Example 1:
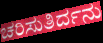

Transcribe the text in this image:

ಚರಿಸುತಿರ್ದನು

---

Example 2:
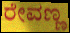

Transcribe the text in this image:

ರೇವಣ್ಣ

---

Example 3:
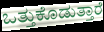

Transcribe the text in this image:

ಒತ್ತುಕೊಡುತ್ತಾರೆ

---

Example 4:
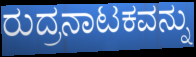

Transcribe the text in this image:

ರುದ್ರನಾಟಕವನ್ನು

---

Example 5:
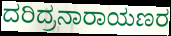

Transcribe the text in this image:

ದರಿದ್ರನಾರಾಯಣರ